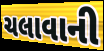
ચલાવાની